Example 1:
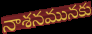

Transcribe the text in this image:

నాశనమునకు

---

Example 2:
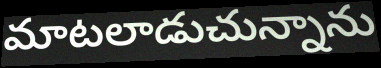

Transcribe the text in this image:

మాటలాడుచున్నాను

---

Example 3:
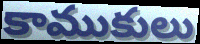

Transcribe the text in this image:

కాముకులు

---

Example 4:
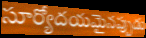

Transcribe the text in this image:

సూర్యోదయమైనప్పుడు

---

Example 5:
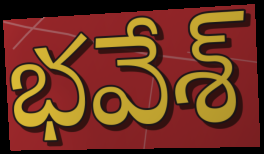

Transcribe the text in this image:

భవేశ్